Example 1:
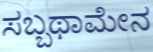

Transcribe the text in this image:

ಸಬ್ಬಥಾಮೇನ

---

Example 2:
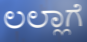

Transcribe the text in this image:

ಲಲ್ಲಾಗೆ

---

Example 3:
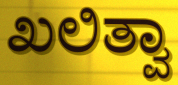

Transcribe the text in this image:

ಖಲಿತ್ವಾ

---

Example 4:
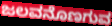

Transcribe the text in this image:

ಜಲವನೊಣಗುವ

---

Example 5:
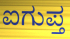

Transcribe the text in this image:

ಐಗುಪ್ತ